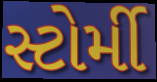
સ્ટોર્મી